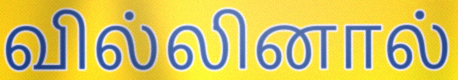
வில்லினால்